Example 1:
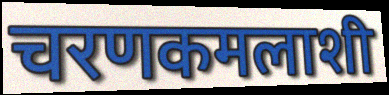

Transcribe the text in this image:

चरणकमलाशी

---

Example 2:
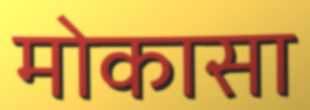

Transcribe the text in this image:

मोकासा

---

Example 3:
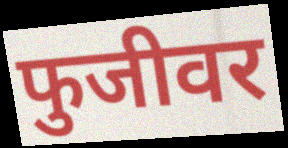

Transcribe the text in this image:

फुजीवर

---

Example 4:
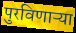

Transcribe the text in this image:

पुरविणाऱ्या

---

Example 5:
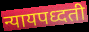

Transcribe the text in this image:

न्यायपध्दती